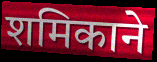
शमिकाने